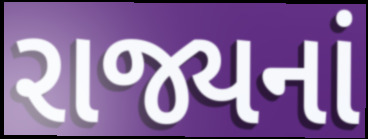
રાજ્યનાં